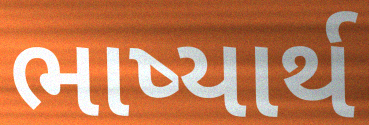
ભાષ્યાર્થ